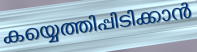
കയ്യെത്തിപ്പിടിക്കാൻ